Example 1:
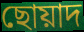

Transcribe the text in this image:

ছোয়াদ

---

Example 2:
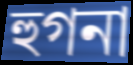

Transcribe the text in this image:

হুগনা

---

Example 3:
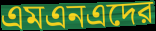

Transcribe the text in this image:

এমএনএদের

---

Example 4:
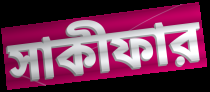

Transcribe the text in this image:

সাকীফার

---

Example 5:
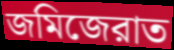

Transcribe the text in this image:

জমিজেরাত